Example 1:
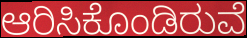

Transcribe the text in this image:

ಆರಿಸಿಕೊಂಡಿರುವೆ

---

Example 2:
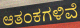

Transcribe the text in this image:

ಆತಂಕಗಳಿವೆ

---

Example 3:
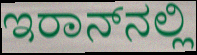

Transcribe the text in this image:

ಇರಾನ್‌ನಲ್ಲಿ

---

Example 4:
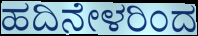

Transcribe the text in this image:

ಹದಿನೇಳರಿಂದ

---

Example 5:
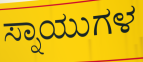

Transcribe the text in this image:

ಸ್ನಾಯುಗಳ